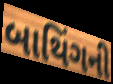
બાથિંગની